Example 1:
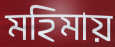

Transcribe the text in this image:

মহিমায়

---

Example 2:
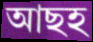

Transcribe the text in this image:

আছহ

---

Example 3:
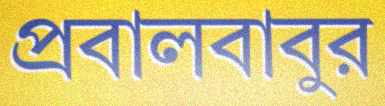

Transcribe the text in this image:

প্রবালবাবুর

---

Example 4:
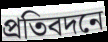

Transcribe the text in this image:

প্রতিবদনে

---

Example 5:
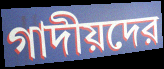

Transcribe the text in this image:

গাদীয়দের